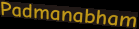
Padmanabham